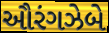
ઔરંગઝેબે